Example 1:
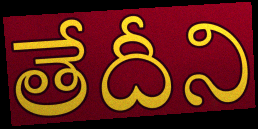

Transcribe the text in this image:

తేదీని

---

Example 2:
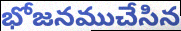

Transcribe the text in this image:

భోజనముచేసిన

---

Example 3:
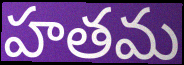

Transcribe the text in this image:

హతమ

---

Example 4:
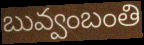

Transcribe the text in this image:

బువ్వంబంతి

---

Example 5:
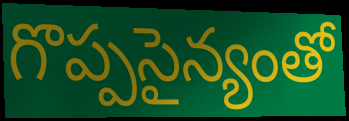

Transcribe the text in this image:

గొప్పసైన్యంతో